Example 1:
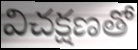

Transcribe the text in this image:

విచక్షణతో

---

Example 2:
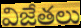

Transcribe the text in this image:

విజేతలు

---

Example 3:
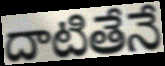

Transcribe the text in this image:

దాటితేనే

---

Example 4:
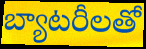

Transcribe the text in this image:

బ్యాటరీలతో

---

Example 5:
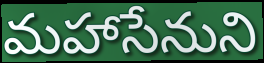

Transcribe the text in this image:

మహాసేనుని